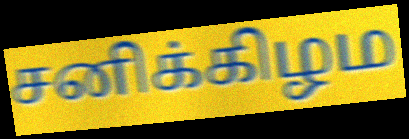
சனிக்கிழம